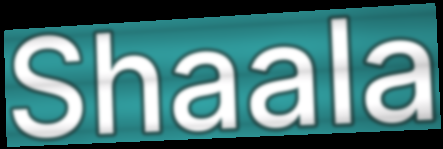
Shaala